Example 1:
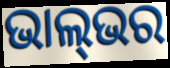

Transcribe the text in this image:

ଭାଲ୍‌ଭର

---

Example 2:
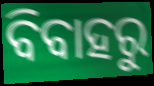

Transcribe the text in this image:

ବିବାହରୁ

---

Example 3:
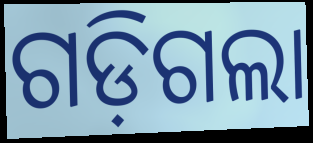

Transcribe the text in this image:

ଗଡ଼ିଗଲା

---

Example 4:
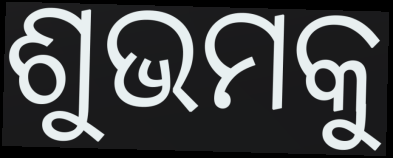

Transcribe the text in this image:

ଶୁଭମକୁ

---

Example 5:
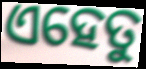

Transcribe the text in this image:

ଏହେତୁ